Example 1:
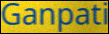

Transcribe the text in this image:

Ganpati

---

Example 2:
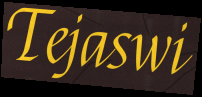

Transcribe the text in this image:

Tejaswi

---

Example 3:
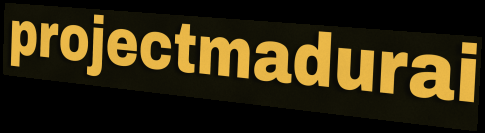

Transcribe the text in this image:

projectmadurai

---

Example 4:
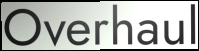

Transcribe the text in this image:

Overhaul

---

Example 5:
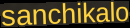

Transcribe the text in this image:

sanchikalo